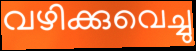
വഴിക്കുവെച്ചു